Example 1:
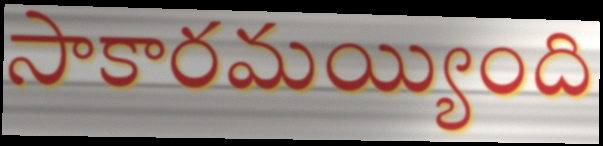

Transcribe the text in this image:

సాకారమయ్యింది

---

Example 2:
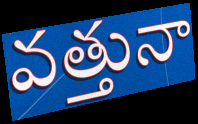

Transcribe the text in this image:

వత్తునా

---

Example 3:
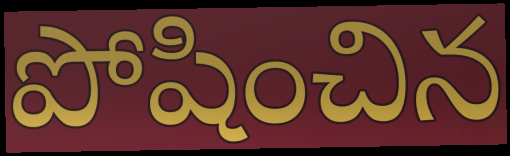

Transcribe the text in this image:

పోషించిన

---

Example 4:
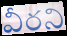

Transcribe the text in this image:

వీరని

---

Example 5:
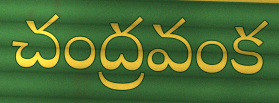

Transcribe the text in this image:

చంద్రవంక